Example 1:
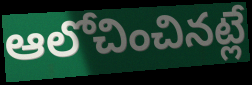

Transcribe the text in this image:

ఆలోచించినట్లే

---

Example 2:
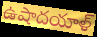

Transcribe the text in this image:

ఉషాదయాళ్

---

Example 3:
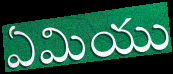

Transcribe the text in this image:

ఏమియు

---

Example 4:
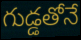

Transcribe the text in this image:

గుడ్డతోనే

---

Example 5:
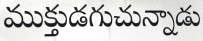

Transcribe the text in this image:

ముక్తుడగుచున్నాడు